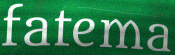
fatema